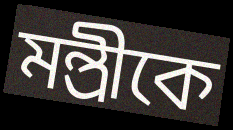
মন্ত্রীকে